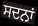
ਸਦਨਾਂ